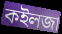
কইলজা